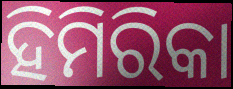
ହିମିରିକା